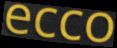
ecco